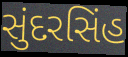
સુંદરસિંહ